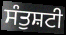
ਸੰਤੁਸ਼ਟੀ